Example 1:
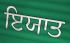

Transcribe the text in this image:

ਇਯਾਤ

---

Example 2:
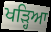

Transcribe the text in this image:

ਖੜ੍ਹਿਆ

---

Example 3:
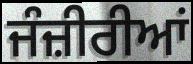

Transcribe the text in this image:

ਜੰਜ਼ੀਰੀਆਂ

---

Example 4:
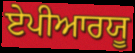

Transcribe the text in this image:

ਏਪੀਆਰਯੂ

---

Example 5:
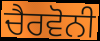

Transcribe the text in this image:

ਚੈਰਵੋਨੀ